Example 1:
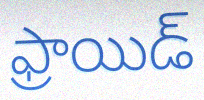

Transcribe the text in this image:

ఫ్రాయిడ్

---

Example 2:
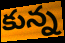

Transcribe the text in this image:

కున్న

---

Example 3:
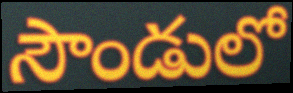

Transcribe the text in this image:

సౌండులో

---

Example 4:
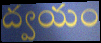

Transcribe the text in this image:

ద్వయం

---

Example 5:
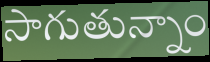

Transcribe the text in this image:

సాగుతున్నాం